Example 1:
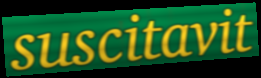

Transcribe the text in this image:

suscitavit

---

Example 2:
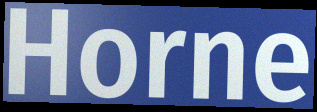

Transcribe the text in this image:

Horne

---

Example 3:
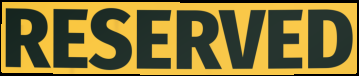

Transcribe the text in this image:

RESERVED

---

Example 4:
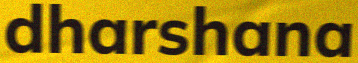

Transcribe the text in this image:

dharshana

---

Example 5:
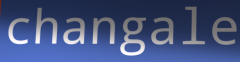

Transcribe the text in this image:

changale